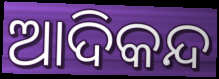
ଆଦିକନ୍ଦ